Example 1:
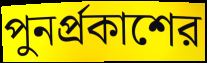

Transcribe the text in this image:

পুনর্প্রকাশের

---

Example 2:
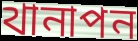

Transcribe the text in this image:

থানাপন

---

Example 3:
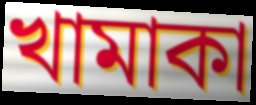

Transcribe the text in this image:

খামাকা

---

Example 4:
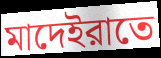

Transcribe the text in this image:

মাদেইরাতে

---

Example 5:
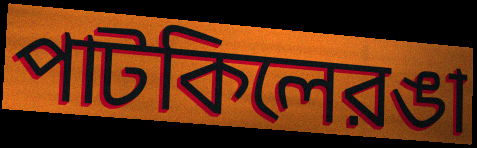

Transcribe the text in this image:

পাটকিলেরঙা